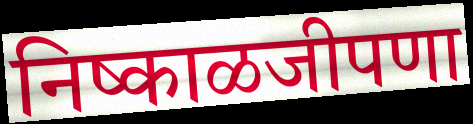
निष्काळजीपणा